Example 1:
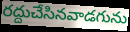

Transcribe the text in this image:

రద్దుచేసినవాడగును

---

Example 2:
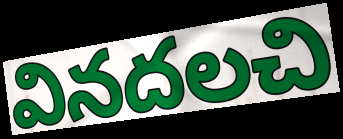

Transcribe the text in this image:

వినదలచి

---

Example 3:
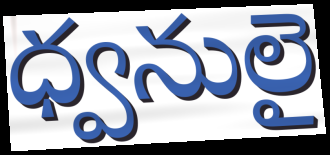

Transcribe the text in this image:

ధ్వనులై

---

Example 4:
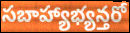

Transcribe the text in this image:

సబాహ్యాభ్యన్తరో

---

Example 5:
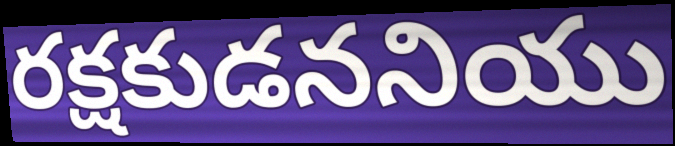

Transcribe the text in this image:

రక్షకుడననియు